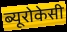
ब्यूरोकेसी